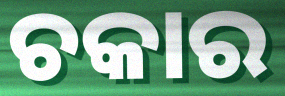
ଚକାର